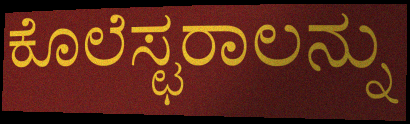
ಕೊಲೆಸ್ಟರಾಲನ್ನು